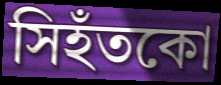
সিহঁতকো